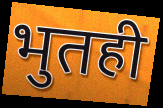
भुतही